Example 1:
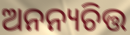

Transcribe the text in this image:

ଅନନ୍ୟଚିତ୍ତ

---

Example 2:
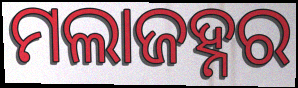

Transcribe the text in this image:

ମଲାଜହ୍ନର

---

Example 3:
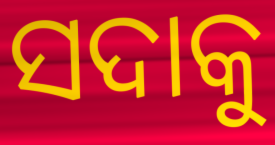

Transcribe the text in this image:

ସଦାକୁ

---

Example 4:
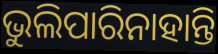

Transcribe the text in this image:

ଭୁଲିପାରିନାହାନ୍ତି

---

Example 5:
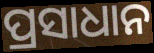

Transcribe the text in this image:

ପ୍ରସାଧାନ